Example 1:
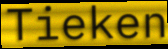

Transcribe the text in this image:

Tieken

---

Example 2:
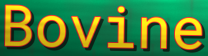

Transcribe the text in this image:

Bovine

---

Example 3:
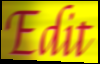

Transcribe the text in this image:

Edit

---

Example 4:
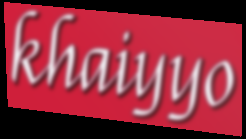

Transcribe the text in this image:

khaiyyo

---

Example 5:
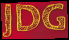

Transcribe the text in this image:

JDG